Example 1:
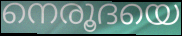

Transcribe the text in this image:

നെരൂദയെ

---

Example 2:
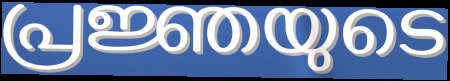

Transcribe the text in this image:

പ്രജ്ഞയുടെ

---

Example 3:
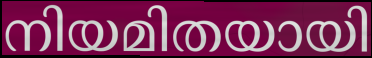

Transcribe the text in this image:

നിയമിതയായി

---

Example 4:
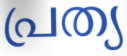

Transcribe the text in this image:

പ്രത്യ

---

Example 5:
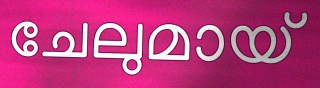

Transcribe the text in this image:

ചേലുമായ്